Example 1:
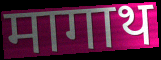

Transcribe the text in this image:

मागाथ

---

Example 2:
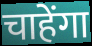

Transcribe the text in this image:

चाहेंगा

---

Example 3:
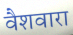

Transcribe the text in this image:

वैशवारा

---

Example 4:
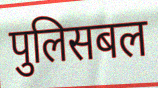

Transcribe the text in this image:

पुलिसबल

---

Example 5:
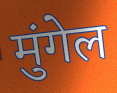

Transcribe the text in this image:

मुंगेल